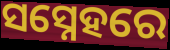
ସସ୍ନେହରେ